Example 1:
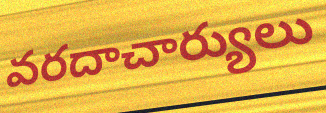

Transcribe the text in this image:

వరదాచార్యులు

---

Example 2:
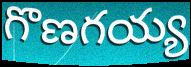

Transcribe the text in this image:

గొణగయ్య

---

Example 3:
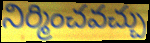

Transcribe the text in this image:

నిర్మించవచ్చు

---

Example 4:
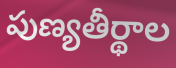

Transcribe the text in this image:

పుణ్యతీర్థాల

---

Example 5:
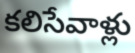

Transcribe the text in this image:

కలిసేవాళ్లు